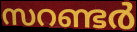
സറണ്ടർ